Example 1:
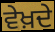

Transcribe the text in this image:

ਵੇਖ਼ਦੇ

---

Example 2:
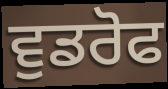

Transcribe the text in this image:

ਵੁਡਰੋਫ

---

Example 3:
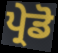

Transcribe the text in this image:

ਪ੍ਰੇਡੋ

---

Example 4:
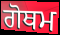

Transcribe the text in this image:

ਗੋਥਮ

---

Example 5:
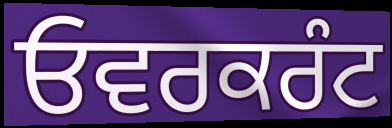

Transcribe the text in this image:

ਓਵਰਕਰੰਟ